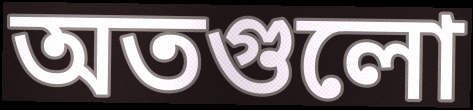
অতগুলো